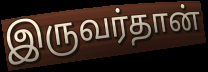
இருவர்தான்